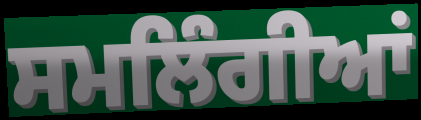
ਸਮਲਿੰਗੀਆਂ